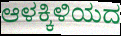
ಆಳಕ್ಕಿಳಿಯದ